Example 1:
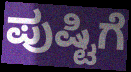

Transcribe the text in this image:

ಪುಷ್ಟಿಗೆ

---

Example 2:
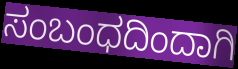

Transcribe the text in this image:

ಸಂಬಂಧದಿಂದಾಗಿ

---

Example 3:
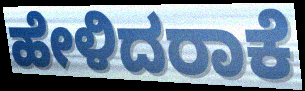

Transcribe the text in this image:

ಹೇಳಿದರಾಕೆ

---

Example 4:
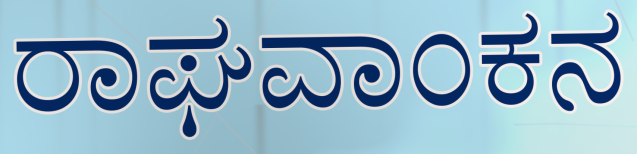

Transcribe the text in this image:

ರಾಘವಾಂಕನ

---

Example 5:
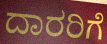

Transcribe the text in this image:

ದಾರರಿಗೆ